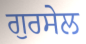
ਗੁਰਸੇਲ